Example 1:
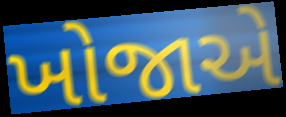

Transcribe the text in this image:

ખોજાએ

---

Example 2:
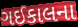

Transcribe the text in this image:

ગઈકાલના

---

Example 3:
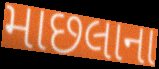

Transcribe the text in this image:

માછલાના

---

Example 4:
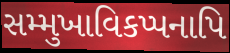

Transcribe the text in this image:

સમ્મુખાવિકપ્પનાપિ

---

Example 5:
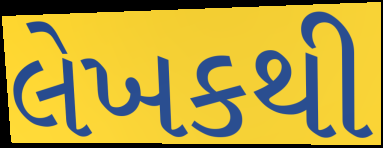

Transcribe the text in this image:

લેખકથી